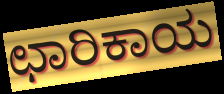
ಛಾರಿಕಾಯ